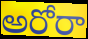
అరోరా